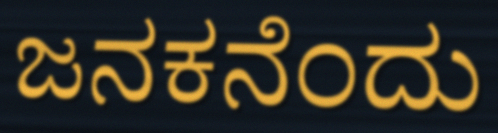
ಜನಕನೆಂದು